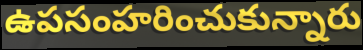
ఉపసంహరించుకున్నారు